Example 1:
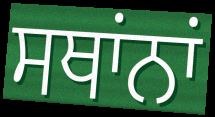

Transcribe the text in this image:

ਸਥਾਂਨਾਂ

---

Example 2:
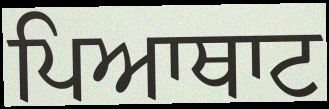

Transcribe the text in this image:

ਪਿਆਥਾਟ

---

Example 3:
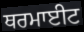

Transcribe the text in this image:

ਥਰਮਾਈਟ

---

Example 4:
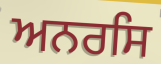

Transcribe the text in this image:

ਅਨਰਸਿ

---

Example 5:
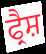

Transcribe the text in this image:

ਫ੍ਰੈਸ਼